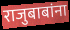
राजुबाबांना